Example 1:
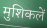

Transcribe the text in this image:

मुशिकलें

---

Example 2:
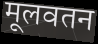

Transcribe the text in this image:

मूलवतन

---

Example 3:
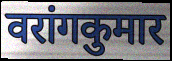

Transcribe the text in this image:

वरांगकुमार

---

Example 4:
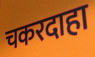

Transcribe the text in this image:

चकरदाहा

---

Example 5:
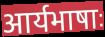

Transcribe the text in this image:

आर्यभाषाः